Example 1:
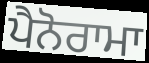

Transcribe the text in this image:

ਪੈਨੋਰਾਮਾ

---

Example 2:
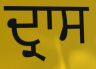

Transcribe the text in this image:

ਦ੍ਰਾਸ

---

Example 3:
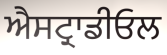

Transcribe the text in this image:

ਐਸਟ੍ਰਾਡੀਓਲ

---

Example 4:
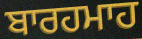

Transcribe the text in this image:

ਬਾਰਹਮਾਹ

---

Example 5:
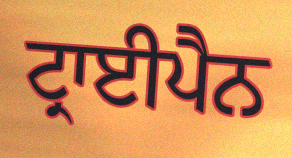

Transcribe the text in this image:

ਟ੍ਰਾਈਪੈਨ